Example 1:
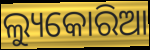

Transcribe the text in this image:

ଲ୍ୟୁକୋରିଆ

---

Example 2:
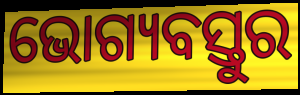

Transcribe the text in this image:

ଭୋଗ୍ୟବସ୍ତୁର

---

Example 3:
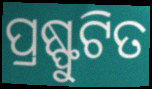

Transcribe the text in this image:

ପ୍ରଷ୍ଫୁଟିତ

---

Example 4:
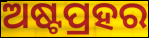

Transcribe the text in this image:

ଅଷ୍ଟପ୍ରହର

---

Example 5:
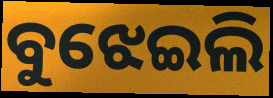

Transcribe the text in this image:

ବୁଝେଇଲି